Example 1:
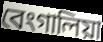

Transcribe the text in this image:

বেংগালিয়া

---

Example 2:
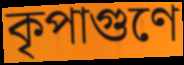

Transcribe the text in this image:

কৃপাগুণে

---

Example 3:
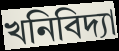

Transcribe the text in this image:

খনিবিদ্যা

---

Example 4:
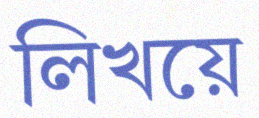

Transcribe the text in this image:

লিখয়ে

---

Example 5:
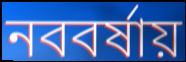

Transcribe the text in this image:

নববর্ষায়